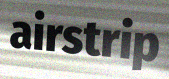
airstrip